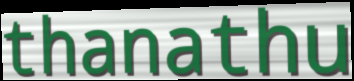
thanathu